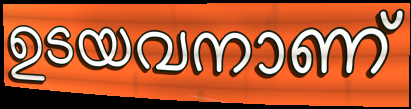
ഉടയവനാണ്